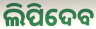
ଲିପିଦେବ